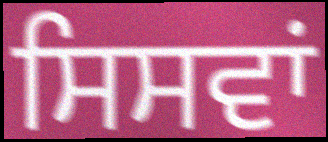
ਸਿਸਵਾਂ